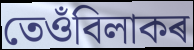
তেওঁবিলাকৰ